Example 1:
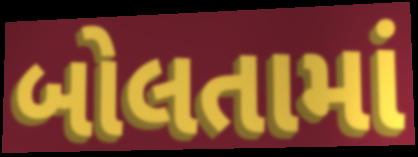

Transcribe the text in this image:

બોલતામાં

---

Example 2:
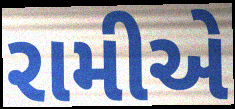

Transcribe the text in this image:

રામીએ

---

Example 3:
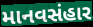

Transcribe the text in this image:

માનવસંહાર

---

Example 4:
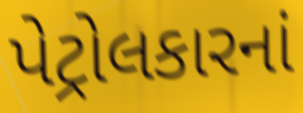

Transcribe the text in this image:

પેટ્રોલકારનાં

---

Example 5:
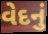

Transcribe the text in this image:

વેદનું